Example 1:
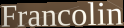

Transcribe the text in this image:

Francolin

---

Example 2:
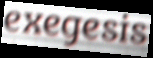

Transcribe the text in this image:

exegesis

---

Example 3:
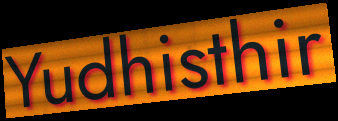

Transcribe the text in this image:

Yudhisthir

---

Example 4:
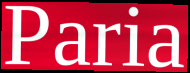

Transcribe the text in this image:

Paria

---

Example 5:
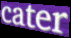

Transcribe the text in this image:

cater